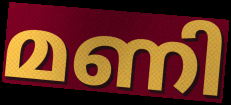
മണി